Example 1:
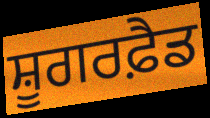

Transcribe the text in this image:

ਸ਼ੂਗਰਫ਼ੈਡ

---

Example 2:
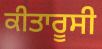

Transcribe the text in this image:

ਕੀਤਾਰੂਸੀ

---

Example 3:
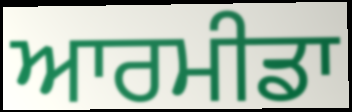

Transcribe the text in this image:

ਆਰਮੀਡਾ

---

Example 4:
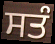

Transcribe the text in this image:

ਸਤੰ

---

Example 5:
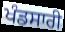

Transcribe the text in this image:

ਖੰਡਸਾਰੀ